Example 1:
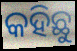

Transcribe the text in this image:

କହିଛୁ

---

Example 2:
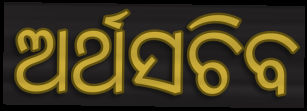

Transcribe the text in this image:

ଅର୍ଥସଚିବ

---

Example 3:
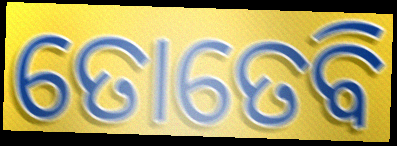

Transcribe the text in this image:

ତୋତେବି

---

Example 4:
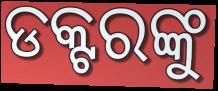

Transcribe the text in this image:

ଡକ୍ଟରଙ୍କୁ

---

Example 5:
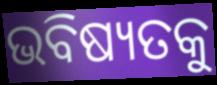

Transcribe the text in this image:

ଭବିଷ୍ୟତକୁ